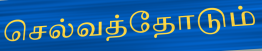
செல்வத்தோடும்